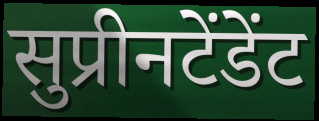
सुप्रीनटेंडेंट